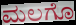
ಮಲಗೊ